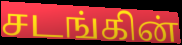
சடங்கின்